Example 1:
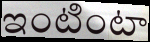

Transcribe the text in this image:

ఇంటింటా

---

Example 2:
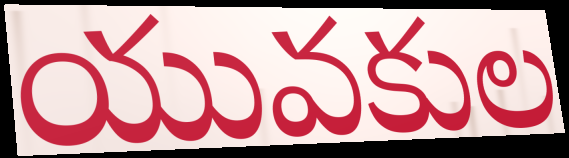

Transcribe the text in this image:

యువకుల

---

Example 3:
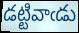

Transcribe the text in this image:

డట్టివాఁడు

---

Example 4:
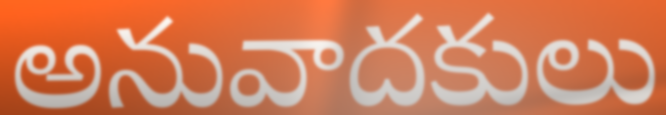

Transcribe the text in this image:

అనువాదకులు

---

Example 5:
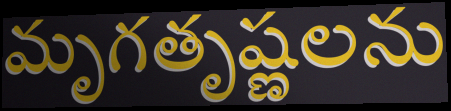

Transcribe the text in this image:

మృగతృష్ణలను